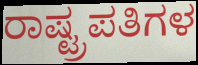
ರಾಷ್ಟ್ರಪತಿಗಳ